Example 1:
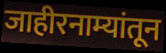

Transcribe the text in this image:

जाहीरनाम्यांतून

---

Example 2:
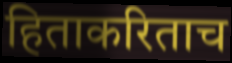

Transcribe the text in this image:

हिताकरिताच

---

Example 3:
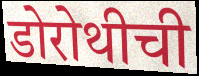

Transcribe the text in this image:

डोरोथीची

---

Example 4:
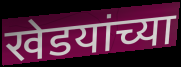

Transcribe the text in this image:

खेडयांच्या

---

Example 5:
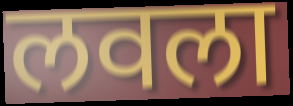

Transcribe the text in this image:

लवला